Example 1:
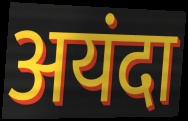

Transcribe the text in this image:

अयंदा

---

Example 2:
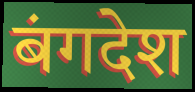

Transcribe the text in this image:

बंगदेश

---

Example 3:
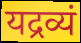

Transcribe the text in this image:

यद्रव्यं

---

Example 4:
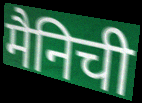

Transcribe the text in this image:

मैनिची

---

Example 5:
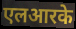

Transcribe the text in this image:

एलआरके